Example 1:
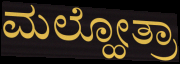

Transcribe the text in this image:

ಮಲ್ಹೋತ್ರಾ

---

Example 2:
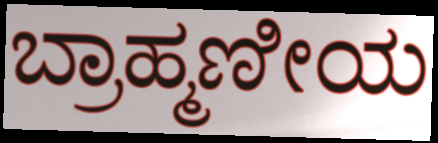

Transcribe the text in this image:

ಬ್ರಾಹ್ಮಣೀಯ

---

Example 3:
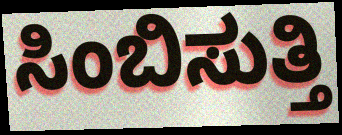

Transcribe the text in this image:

ಸಿಂಬಿಸುತ್ತಿ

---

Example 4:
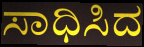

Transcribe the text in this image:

ಸಾಧಿಸಿದ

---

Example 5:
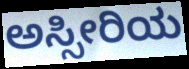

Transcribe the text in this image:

ಅಸ್ಸೀರಿಯ